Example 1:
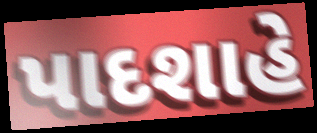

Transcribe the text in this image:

પાદશાહે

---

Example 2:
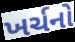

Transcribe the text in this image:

ખર્ચનો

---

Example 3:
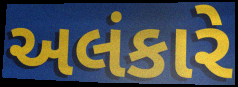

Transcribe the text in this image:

અલંકારે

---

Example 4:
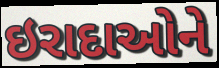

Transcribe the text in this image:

ઇરાદાઓને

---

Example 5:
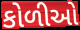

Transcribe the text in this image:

કોળીઓ